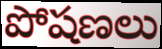
పోషణలు